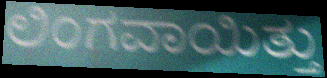
ಲಿಂಗವಾಯಿತ್ತು